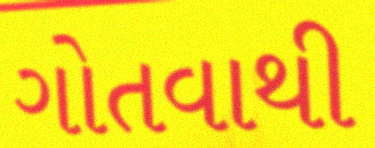
ગોતવાથી